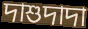
দাশুদাদা